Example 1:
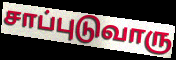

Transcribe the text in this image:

சாப்புடுவாரு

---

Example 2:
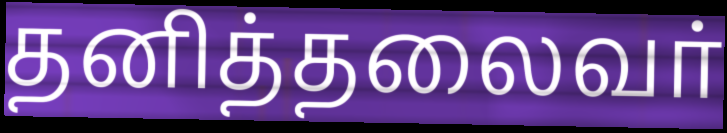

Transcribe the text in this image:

தனித்தலைவர்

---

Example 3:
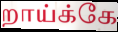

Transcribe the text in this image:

றாய்க்கே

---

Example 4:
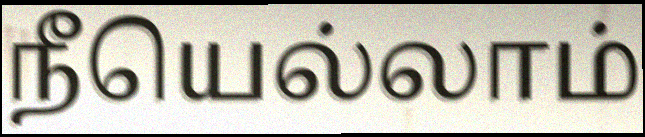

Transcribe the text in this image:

நீயெல்லாம்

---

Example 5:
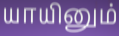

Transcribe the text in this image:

யாயினும்